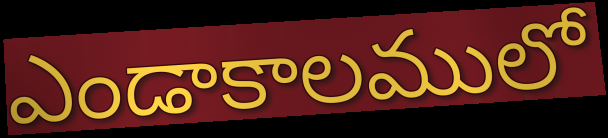
ఎండాకాలములో